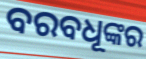
ବରବଧୂଙ୍କର